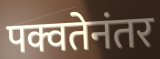
पक्वतेनंतर